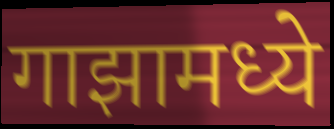
गाझामध्ये